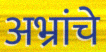
अभ्रांचे